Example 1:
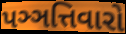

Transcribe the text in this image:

પઞ્ઞત્તિવારો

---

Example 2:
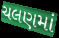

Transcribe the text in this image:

ચલણમાં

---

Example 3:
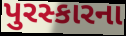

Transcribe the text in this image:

પુરસ્કારના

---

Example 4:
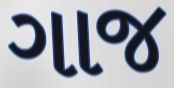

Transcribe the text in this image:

ગાજ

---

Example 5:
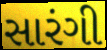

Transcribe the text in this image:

સારંગી